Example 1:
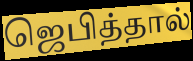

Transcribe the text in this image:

ஜெபித்தால்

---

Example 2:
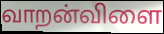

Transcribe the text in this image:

வாறன்விளை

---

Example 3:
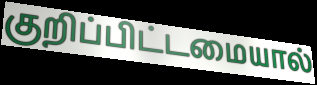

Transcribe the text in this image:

குறிப்பிட்டமையால்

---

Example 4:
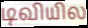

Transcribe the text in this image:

டிவியில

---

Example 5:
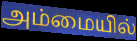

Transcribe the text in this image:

அம்மையில்